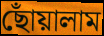
ছোঁয়ালাম